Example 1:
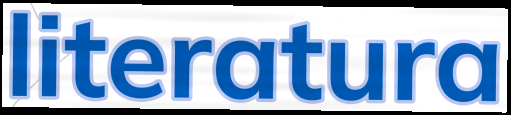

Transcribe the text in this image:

literatura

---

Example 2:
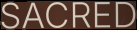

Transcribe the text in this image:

SACRED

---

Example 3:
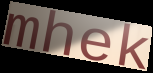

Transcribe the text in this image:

mhek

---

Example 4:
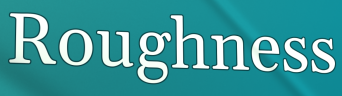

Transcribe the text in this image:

Roughness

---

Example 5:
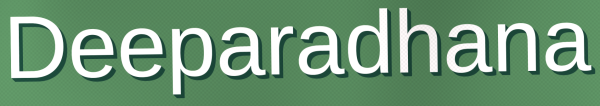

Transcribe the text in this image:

Deeparadhana